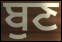
ਬੁਣ